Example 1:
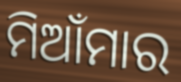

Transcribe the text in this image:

ମିଆଁମାର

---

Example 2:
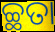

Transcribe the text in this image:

ଚ୍ଛତା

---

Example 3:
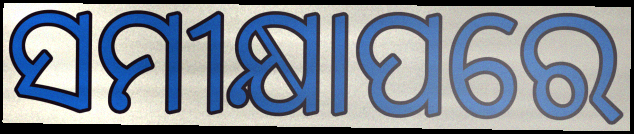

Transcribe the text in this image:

ସମୀକ୍ଷାପରେ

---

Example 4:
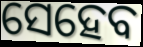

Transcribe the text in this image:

ସେହେବ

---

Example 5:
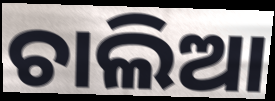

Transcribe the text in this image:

ଚାଲିଆ